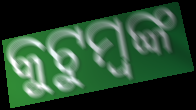
କୁଟୁମ୍ବଙ୍କ